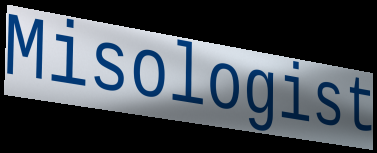
Misologist